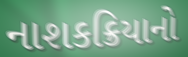
નાશકક્રિયાનો